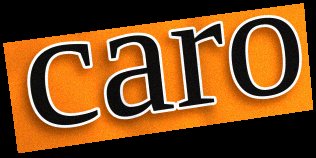
caro